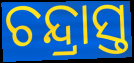
ଚନ୍ଦ୍ରାସ୍ତ